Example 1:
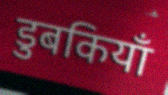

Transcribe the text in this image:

डुबकियाँ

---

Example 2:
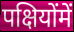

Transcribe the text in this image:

पक्षियोंमें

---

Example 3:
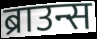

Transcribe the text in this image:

ब्राउन्स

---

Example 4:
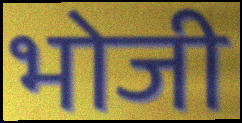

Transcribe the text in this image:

भोजी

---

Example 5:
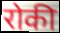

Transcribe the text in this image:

रोकी